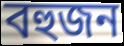
বহুজন